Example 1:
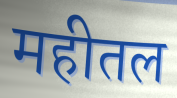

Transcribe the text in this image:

महीतल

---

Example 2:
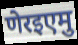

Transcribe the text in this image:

णेरइएमु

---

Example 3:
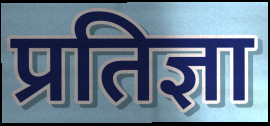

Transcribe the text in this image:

प्रतिज्ञा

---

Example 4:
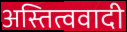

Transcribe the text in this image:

अस्तित्ववादी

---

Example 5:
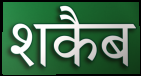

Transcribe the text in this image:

शकैब